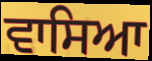
ਵਾਸਿਆ